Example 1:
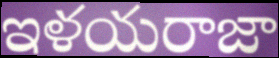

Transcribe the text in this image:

ఇళయరాజా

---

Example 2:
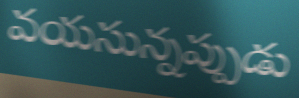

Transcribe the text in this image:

వయసున్నప్పుడు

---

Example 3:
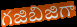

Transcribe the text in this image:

గజిబిజిగా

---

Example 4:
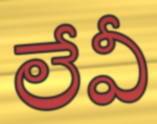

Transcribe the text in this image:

లేవీ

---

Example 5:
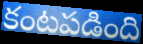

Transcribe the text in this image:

కంటపడింది